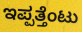
ಇಪ್ಪತ್ತೆಂಟು